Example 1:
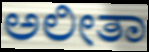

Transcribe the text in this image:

ಅಲೀತಾ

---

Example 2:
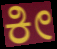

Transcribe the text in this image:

ಕೀ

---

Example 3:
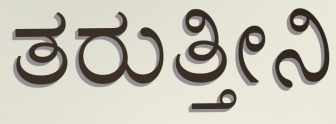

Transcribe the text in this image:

ತರುತ್ತೀನಿ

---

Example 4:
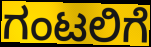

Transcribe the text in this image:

ಗಂಟಲಿಗೆ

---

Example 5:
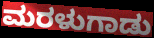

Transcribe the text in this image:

ಮರಳುಗಾಡು